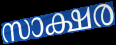
സാക്ഷര